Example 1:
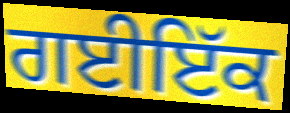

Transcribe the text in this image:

ਗਈਇੱਕ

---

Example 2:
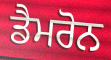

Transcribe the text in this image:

ਡੈਮਰੋਨ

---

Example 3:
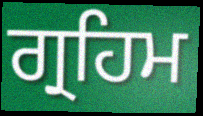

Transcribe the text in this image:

ਗ੍ਰਹਿਮ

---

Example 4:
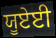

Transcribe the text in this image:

ਯੂਏਈ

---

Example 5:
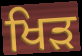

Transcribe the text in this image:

ਖਿੜ